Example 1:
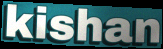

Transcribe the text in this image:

kishan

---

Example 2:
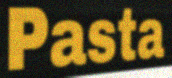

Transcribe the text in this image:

Pasta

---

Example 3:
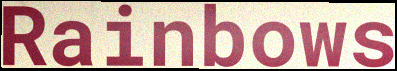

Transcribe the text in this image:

Rainbows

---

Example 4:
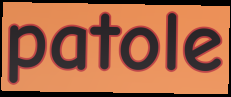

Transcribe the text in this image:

patole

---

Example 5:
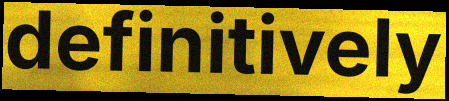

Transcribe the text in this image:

definitively